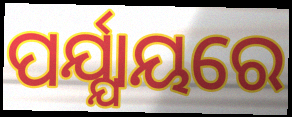
ପର୍ଯ୍ଯାୟରେ